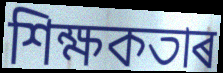
শিক্ষকতাৰ